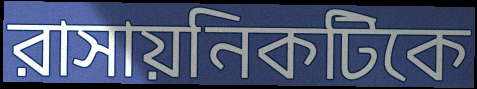
রাসায়নিকটিকে